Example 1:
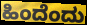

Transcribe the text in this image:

ಹಿಂದೆಂದು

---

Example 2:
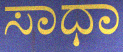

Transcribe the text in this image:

ಸಾಧಾ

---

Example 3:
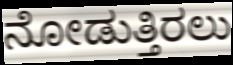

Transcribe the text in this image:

ನೋಡುತ್ತಿರಲು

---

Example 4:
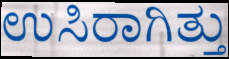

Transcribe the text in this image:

ಉಸಿರಾಗಿತ್ತು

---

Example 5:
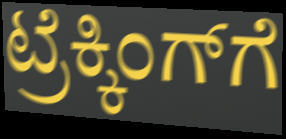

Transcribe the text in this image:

ಟ್ರೆಕ್ಕಿಂಗ್‌ಗೆ